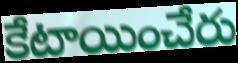
కేటాయించేరు